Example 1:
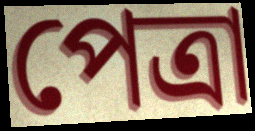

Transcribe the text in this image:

পেত্রা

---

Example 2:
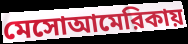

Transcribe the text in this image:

মেসোআমেরিকায়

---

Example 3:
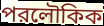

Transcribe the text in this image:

পরলৌকিক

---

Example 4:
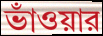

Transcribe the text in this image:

ভাঁওয়ার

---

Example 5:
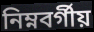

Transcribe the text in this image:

নিম্নবর্গীয়